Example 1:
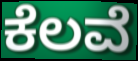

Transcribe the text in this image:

ಕೆಲವೆ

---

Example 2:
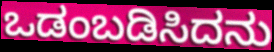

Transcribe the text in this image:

ಒಡಂಬಡಿಸಿದನು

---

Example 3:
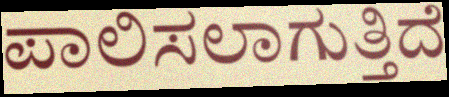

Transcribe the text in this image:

ಪಾಲಿಸಲಾಗುತ್ತಿದೆ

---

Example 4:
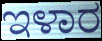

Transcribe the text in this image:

ಇಳಾರ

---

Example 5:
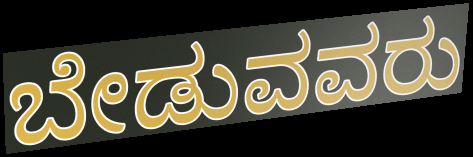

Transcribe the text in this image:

ಬೇಡುವವರು